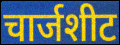
चार्जशीट